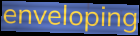
enveloping